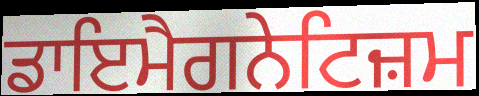
ਡਾਇਮੈਗਨੇਟਿਜ਼ਮ